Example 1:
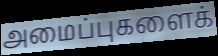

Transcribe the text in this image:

அமைப்புகளைக்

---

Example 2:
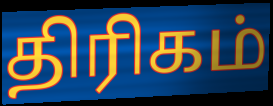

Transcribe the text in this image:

திரிகம்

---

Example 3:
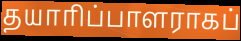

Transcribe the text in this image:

தயாரிப்பாளராகப்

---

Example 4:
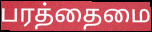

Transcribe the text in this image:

பரத்தைமை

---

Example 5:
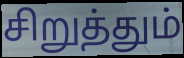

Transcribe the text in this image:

சிறுத்தும்